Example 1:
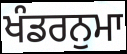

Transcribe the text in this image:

ਖੰਡਰਨੁਮਾ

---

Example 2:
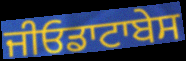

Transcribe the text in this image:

ਜੀਓਡਾਟਾਬੇਸ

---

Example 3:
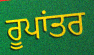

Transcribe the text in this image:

ਰੂਪਾਂਤਰ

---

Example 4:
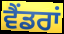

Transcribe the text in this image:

ਵੈਂਡਰਾਂ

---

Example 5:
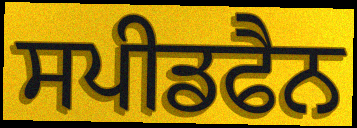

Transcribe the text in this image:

ਸਪੀਡਫੈਨ